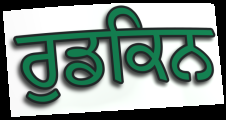
ਰੁਡਕਿਨ